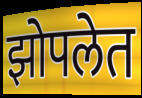
झोपलेत